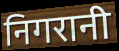
निगरानी